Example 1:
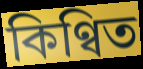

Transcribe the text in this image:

কিণ্বিত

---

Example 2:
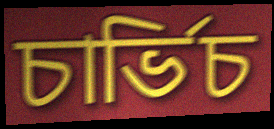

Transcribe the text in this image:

চাৰ্ভিচ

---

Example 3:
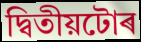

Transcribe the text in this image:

দ্বিতীয়টোৰ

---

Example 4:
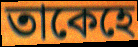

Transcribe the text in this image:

তাকেহে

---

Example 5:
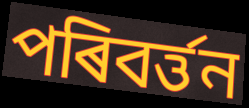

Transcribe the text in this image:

পৰিবৰ্ত্তন